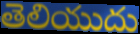
తెలియుదు